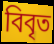
বিবৃত